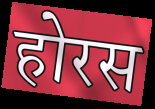
होरस